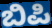
ಬಿಪಿ